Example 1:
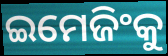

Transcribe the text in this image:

ଇମେଜିଂକୁ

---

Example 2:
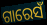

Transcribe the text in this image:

ଗାରେସଁ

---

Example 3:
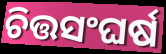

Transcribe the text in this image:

ଚିତ୍ତସଂଘର୍ଷ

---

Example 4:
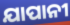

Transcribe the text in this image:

ଯାପାନୀ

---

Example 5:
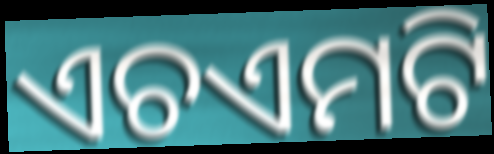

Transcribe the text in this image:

ଏଚଏମଟି